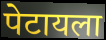
पेटायला